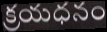
క్రయధనం